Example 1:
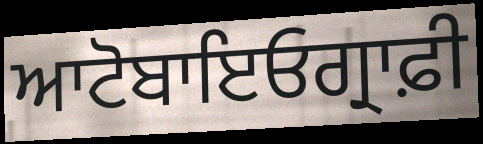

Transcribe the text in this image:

ਆਟੋਬਾਇਓਗ੍ਰਾਫ਼ੀ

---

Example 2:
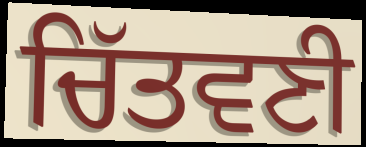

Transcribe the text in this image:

ਚਿੱਤਵਣੀ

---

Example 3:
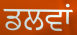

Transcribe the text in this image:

ਡਲਵਾਂ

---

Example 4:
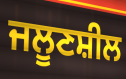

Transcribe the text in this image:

ਜਲੂਣਸ਼ੀਲ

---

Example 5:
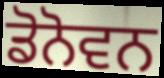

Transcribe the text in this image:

ਡੋਨੋਵਨ